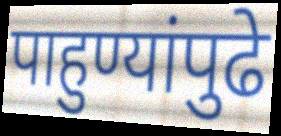
पाहुण्यांपुढे